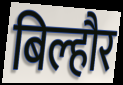
बिल्हौर